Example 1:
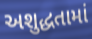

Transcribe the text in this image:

અશુદ્ધતામાં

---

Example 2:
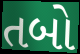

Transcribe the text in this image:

તબો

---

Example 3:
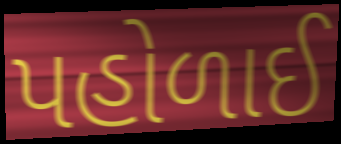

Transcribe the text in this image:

પહોળાઈ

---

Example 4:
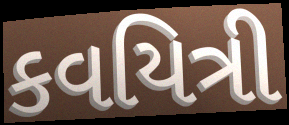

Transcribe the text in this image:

કવયિત્રી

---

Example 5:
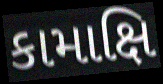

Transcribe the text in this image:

કામાક્ષિ